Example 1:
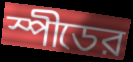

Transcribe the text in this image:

স্পীডের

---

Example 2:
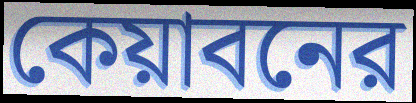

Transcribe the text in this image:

কেয়াবনের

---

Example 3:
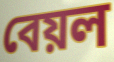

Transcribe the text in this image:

বেয়ল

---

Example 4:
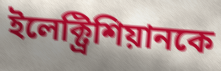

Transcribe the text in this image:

ইলেক্ট্রিশিয়ানকে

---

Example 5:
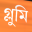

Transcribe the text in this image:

গ্লুমি